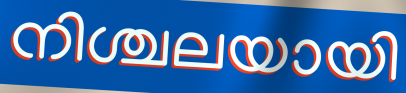
നിശ്ചലയായി